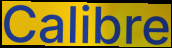
Calibre